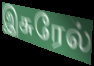
இசுரேல்